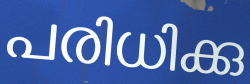
പരിധിക്കു